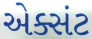
એક્સંટ